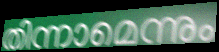
തിന്നാമെന്നും